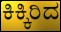
ಕಿಕ್ಕಿರಿದ